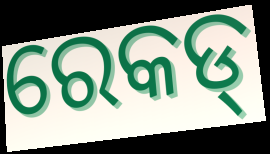
ରେକଡ୍